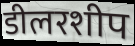
डीलरशीप